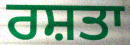
ਰਸ਼ਤਾ